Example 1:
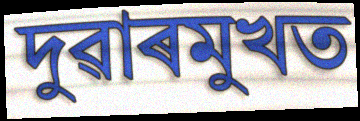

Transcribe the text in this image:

দুৱাৰমুখত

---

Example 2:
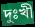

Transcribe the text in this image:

দুঃখী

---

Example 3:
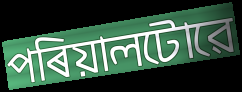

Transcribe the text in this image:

পৰিয়ালটোৱে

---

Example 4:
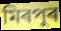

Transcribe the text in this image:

মিৰপুৰ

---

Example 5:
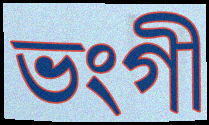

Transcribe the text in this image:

ভংগী